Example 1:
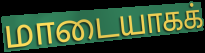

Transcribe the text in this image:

மாடையாகக்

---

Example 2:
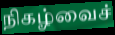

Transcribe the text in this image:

நிகழ்வைச்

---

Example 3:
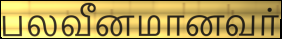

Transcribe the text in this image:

பலவீனமானவர்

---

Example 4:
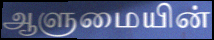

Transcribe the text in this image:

ஆளுமையின்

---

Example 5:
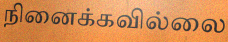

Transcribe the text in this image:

நினைக்கவில்லை